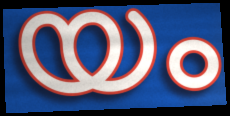
യം